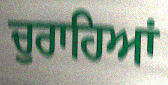
ਚੁਰਾਹਿਆਂ